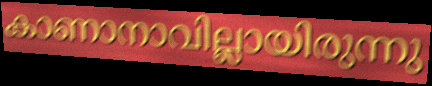
കാണാനാവില്ലായിരുന്നു